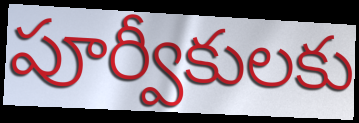
పూర్వీకులకు